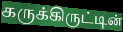
கருக்கிருட்டின்